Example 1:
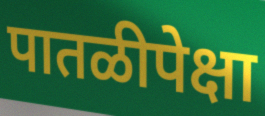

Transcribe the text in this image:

पातळीपेक्षा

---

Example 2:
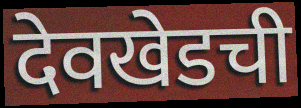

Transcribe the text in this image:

देवखेडची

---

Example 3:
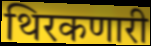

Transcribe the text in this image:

थिरकणारी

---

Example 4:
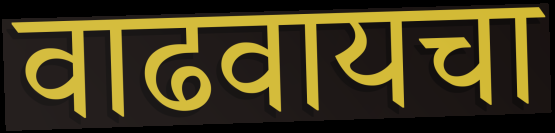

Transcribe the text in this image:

वाढवायचा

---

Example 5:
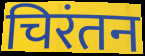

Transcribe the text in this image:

चिरंतन